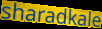
sharadkale